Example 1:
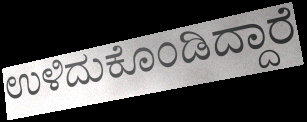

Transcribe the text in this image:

ಉಳಿದುಕೊಂಡಿದ್ದಾರೆ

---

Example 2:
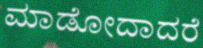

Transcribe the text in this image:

ಮಾಡೋದಾದರೆ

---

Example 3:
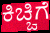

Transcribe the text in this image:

ಕಿಚ್ಚಿಗೆ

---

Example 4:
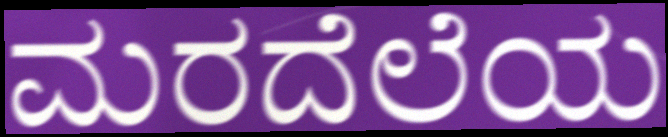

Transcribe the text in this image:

ಮರದೆಲೆಯ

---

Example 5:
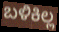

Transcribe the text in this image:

ಬಳಿಕಿಲ್ಲ